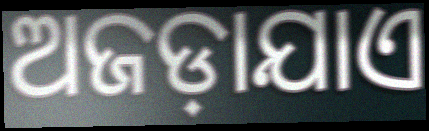
ଅଜଡ଼ାଯାଏ